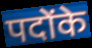
पदोंके